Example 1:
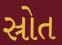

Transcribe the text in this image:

સ્રોત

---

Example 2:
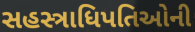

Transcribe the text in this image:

સહસ્ત્રાધિપતિઓની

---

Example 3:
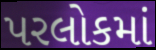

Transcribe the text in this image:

પરલોકમાં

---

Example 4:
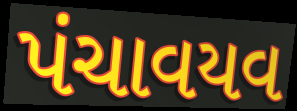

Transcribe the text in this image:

પંચાવયવ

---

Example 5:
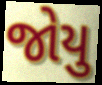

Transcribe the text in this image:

જોયુ